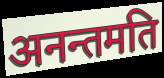
अनन्तमति